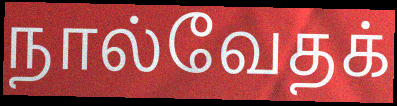
நால்வேதக்